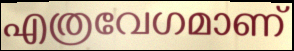
എത്രവേഗമാണ്